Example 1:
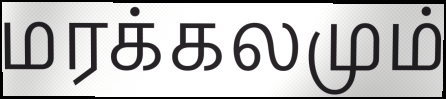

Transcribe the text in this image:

மரக்கலமும்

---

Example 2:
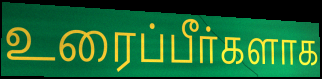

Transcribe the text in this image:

உரைப்பீர்களாக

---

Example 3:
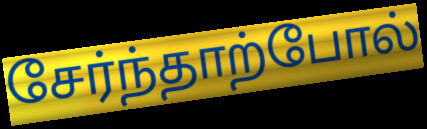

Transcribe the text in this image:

சேர்ந்தாற்போல்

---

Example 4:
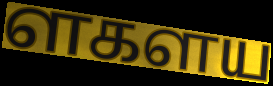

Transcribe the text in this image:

ளகளய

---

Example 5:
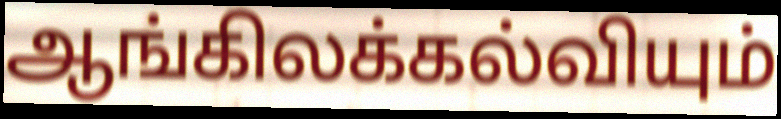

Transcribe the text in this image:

ஆங்கிலக்கல்வியும்